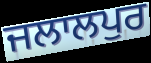
ਜਲਾਲਪੁਰ